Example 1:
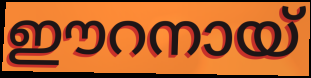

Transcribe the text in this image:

ഈറനായ്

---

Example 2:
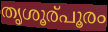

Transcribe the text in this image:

തൃശൂര്പൂരം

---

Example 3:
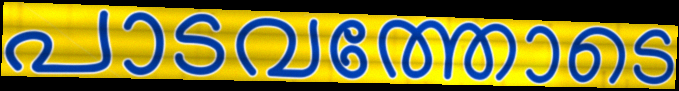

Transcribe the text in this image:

പാടവത്തോടെ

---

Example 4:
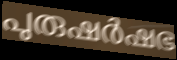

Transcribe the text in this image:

പുരുഷർഷഭ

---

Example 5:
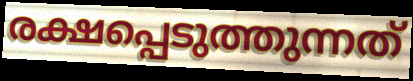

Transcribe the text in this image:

രക്ഷപ്പെടുത്തുന്നത്